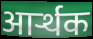
आर्र्थक